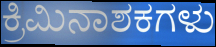
ಕ್ರಿಮಿನಾಶಕಗಳು